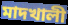
মাদখালী